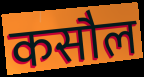
कसौल